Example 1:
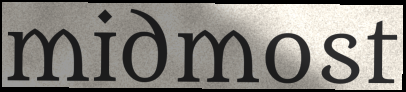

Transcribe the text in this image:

midmost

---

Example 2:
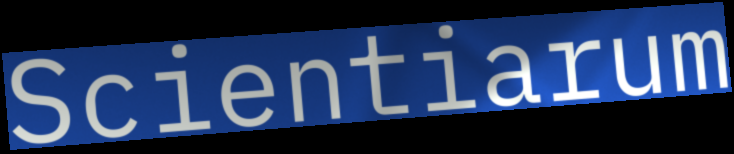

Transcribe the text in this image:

Scientiarum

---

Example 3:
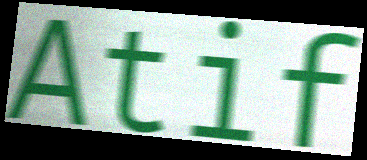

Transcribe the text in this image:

Atif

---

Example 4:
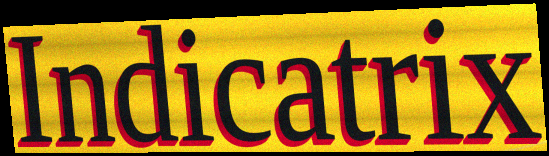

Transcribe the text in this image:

Indicatrix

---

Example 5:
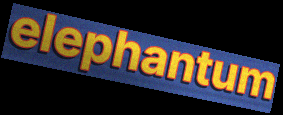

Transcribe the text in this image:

elephantum